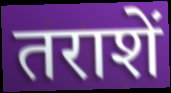
तराशें